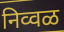
निव्वळ